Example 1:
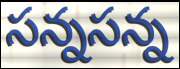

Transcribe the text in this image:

సన్నసన్న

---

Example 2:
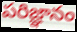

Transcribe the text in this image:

పరిజ్ఞానం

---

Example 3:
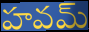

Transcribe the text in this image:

హవమ్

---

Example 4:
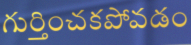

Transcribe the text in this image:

గుర్తించకపోవడం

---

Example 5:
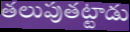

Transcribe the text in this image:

తలుపుతట్టాడు